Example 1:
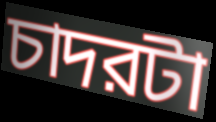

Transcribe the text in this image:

চাদরটা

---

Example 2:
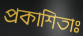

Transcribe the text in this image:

প্রকাশিতাঃ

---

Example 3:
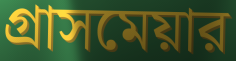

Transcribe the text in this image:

গ্রাসমেয়ার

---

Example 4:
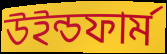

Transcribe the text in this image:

উইন্ডফার্ম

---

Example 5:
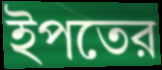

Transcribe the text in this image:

ইপতের